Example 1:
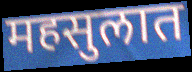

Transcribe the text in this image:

महसुलात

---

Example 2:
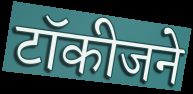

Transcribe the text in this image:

टॉकीजने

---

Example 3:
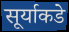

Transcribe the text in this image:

सूर्याकडे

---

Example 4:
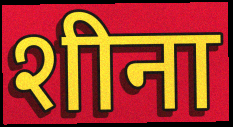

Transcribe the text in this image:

शीना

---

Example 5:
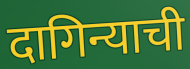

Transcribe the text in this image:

दागिन्याची